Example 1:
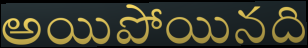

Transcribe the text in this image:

అయిపోయినది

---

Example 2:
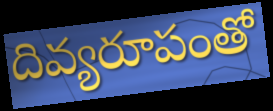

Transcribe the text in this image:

దివ్యరూపంతో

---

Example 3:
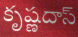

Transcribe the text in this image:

కృష్ణదాస్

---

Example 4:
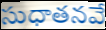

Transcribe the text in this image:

సుధాతనవే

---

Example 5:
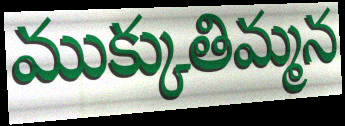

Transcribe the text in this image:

ముక్కుతిమ్మన